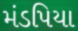
મંડપિયા